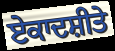
ਏਕਾਦਸ਼ੀਤੇ